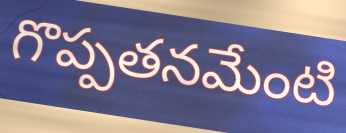
గొప్పతనమేంటి